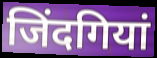
जिंदगियां